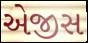
એજીસ